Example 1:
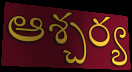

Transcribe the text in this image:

ఆశ్చర్య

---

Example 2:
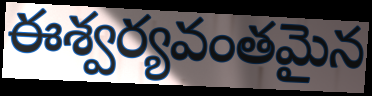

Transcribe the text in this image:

ఈశ్వర్యవంతమైన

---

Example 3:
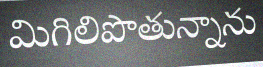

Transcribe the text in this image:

మిగిలిపొతున్నాను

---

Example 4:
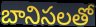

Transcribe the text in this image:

బానిసలతో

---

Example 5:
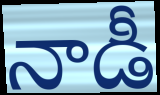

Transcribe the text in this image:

నాడీ